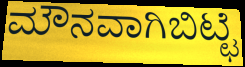
ಮೌನವಾಗಿಬಿಟ್ಟೆ